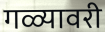
गळ्यावरी